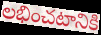
లభించటానికి